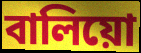
বালিয়ো